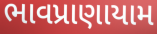
ભાવપ્રાણાયામ